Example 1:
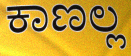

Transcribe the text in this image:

ಕಾಣಲ್ಲ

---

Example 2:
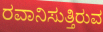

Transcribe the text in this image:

ರವಾನಿಸುತ್ತಿರುವ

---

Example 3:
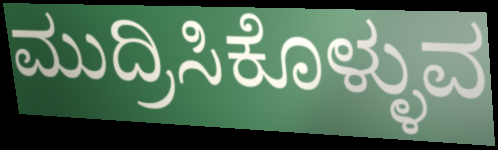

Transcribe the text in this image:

ಮುದ್ರಿಸಿಕೊಳ್ಳುವ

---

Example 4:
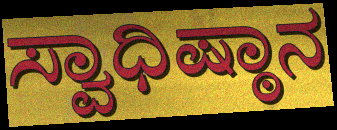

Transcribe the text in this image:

ಸ್ವಾಧಿಷ್ಠಾನ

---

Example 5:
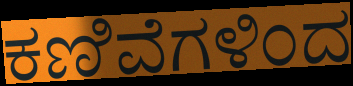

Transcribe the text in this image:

ಕಣಿವೆಗಳಿಂದ